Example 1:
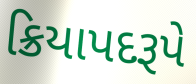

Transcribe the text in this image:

ક્રિયાપદરૂપે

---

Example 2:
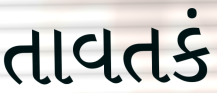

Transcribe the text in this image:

તાવતકં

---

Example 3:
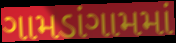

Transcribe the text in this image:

ગામડાંગામમાં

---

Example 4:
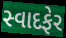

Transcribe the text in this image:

સ્વાદફેર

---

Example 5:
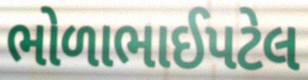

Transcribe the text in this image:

ભોળાભાઈપટેલ